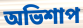
অভিশাপ